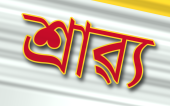
শ্ৰাৱ্য